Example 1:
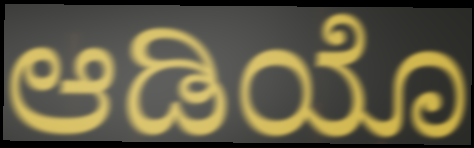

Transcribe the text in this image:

ಆಡಿಯೊ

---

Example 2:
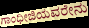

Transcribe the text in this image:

ಗಾಂಧೀಜಿಯವರೇನು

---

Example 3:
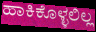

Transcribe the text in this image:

ಹಾಕಿಕೊಳ್ಳಲಿಲ್ಲ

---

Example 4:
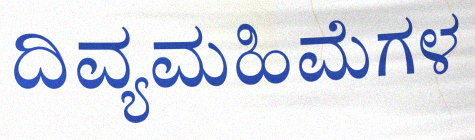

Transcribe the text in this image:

ದಿವ್ಯಮಹಿಮೆಗಳ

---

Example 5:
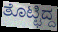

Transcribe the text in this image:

ತೊಟ್ಟಿದ್ದ